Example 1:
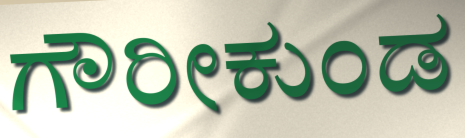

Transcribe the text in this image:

ಗೌರೀಕುಂಡ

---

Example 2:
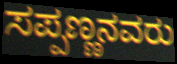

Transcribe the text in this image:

ಸಪ್ಪಣ್ಣನವರು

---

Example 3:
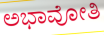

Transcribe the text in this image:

ಅಭಾವೋತಿ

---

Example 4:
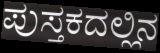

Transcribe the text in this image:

ಪುಸ್ತಕದಲ್ಲಿನ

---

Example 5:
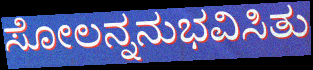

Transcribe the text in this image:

ಸೋಲನ್ನನುಭವಿಸಿತು